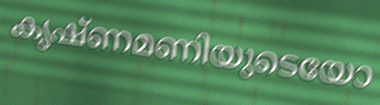
കൃഷ്ണമണിയുടെയോ